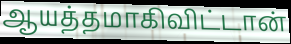
ஆயத்தமாகிவிட்டான்